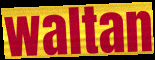
waltan